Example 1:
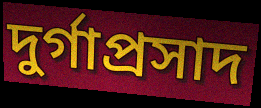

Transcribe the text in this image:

দুৰ্গাপ্ৰসাদ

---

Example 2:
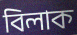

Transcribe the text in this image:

বিলাক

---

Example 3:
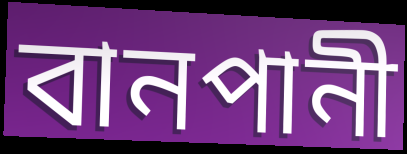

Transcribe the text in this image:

বানপানী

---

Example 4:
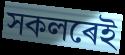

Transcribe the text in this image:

সকলৰেই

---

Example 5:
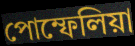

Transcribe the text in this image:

পোম্ফেলিয়া